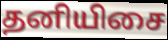
தனியிசை